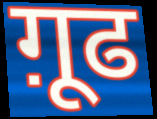
ग़ूढ